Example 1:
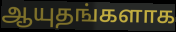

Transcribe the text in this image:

ஆயுதங்களாக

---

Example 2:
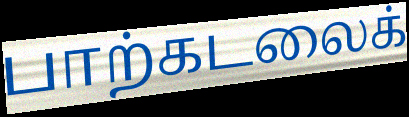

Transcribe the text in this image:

பாற்கடலைக்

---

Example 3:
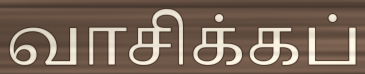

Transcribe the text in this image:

வாசிக்கப்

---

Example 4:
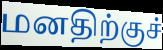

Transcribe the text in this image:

மனதிற்குச்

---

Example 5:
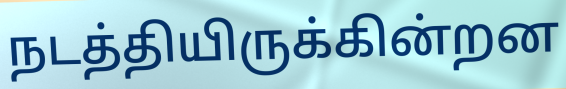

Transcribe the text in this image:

நடத்தியிருக்கின்றன